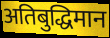
अतिबुद्धिमान